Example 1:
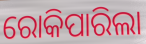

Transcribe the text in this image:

ରୋକିପାରିଲା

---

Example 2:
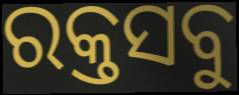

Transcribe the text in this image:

ରକ୍ତସବୁ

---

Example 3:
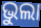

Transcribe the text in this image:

ଭୁଲା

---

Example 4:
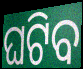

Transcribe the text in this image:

ଘଟିବ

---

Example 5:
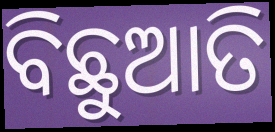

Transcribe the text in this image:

ବିଛୁଆତି